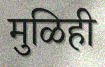
मुळिही